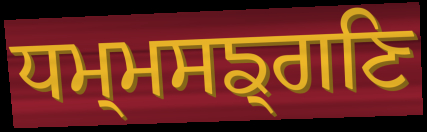
ਧਮ੍ਮਸਙ੍ਗਣਿ